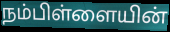
நம்பிள்ளையின்